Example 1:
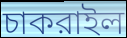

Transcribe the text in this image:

চাকরাইল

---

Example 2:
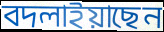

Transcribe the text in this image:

বদলাইয়াছেন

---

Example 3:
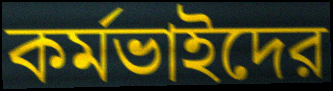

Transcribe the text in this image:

কর্মভাইদের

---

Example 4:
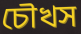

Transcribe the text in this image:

চৌখস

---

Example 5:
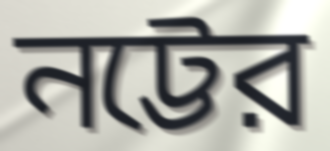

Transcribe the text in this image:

নট্টের